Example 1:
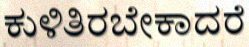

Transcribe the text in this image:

ಕುಳಿತಿರಬೇಕಾದರೆ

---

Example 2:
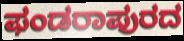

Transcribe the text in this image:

ಫಂಡರಾಪುರದ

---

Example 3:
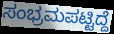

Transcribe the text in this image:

ಸಂಭ್ರಮಪಟ್ಟಿದ್ದೆ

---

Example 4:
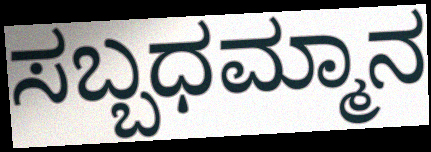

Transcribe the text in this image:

ಸಬ್ಬಧಮ್ಮಾನ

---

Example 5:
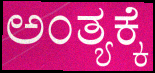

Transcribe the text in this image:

ಅಂತ್ಯಕ್ಕೆ